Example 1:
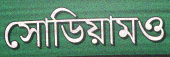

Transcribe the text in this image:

সোডিয়ামও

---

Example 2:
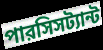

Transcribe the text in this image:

পারসিসট্যান্ট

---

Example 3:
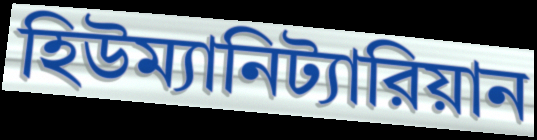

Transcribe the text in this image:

হিউম্যানিট্যারিয়ান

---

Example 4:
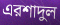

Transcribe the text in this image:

এরশাদুল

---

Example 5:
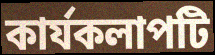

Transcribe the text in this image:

কার্যকলাপটি